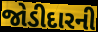
જોડીદારની